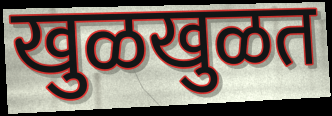
खुळखुळत